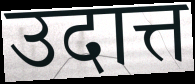
उदात्त